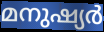
മനുഷ്യർ